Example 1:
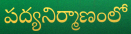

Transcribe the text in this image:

పద్యనిర్మాణంలో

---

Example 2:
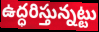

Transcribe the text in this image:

ఉద్ధరిస్తున్నట్టు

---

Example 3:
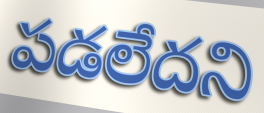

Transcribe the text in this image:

పడలేదని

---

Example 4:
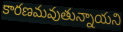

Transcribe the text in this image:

కారణమవుతున్నాయని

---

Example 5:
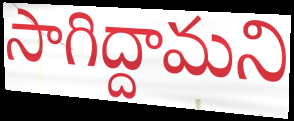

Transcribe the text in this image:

సాగిద్దామని